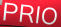
PRIO